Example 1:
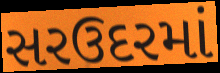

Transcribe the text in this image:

સરઉદરમાં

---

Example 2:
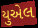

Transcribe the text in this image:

યુએલ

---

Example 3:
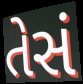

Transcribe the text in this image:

તેસં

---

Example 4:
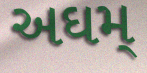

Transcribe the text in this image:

અઘમ્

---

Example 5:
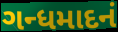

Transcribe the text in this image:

ગન્ધમાદનં